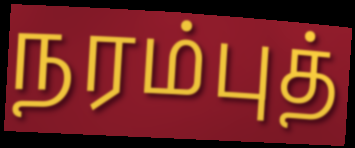
நரம்புத்